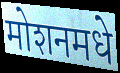
मोशनमधे